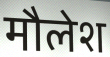
मौलेश